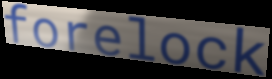
forelock